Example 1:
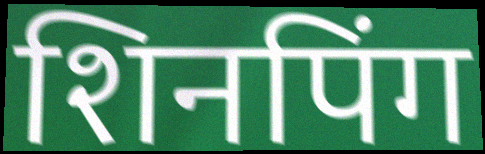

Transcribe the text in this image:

शिनपिंग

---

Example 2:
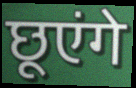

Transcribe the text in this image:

छूएंगे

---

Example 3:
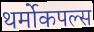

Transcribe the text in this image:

थर्मोकपल्स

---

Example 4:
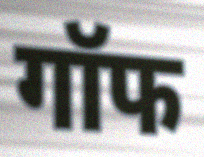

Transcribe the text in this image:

गॉफ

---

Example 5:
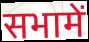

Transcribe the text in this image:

सभामें